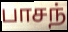
பாசந்